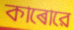
কাৰোৱে